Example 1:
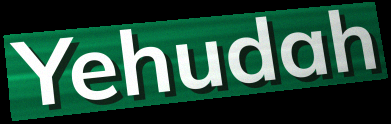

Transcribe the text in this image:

Yehudah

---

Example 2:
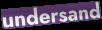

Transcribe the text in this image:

undersand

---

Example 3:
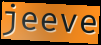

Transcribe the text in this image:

jeeve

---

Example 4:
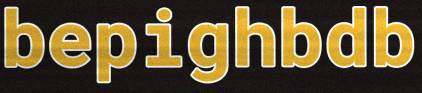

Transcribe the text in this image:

bepighbdb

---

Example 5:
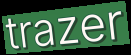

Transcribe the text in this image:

trazer